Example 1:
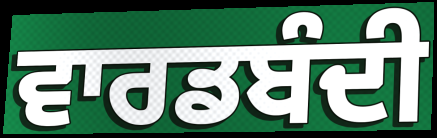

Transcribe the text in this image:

ਵਾਰਡਬੰਦੀ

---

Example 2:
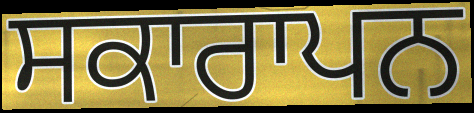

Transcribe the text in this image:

ਸਕਾਰਾਪਨ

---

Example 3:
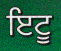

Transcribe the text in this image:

ਇਟੂ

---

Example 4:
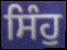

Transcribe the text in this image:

ਸਿੰਹੁ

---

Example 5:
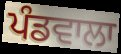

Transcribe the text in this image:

ਪੰਡਵਾਲਾ